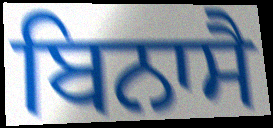
ਬਿਨਾਸੈ